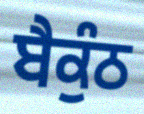
ਬੈਕੁੰਠ